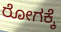
ರೋಗಕ್ಕೆ